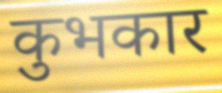
कुभकार